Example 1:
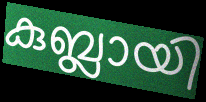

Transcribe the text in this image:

കുബ്ലായി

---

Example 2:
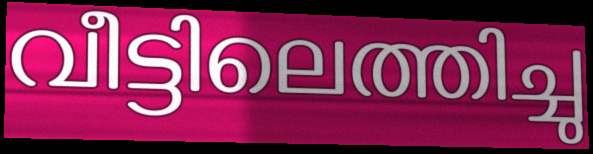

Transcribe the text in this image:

വീട്ടിലെത്തിച്ചു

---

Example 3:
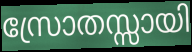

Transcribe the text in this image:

സ്രോതസ്സായി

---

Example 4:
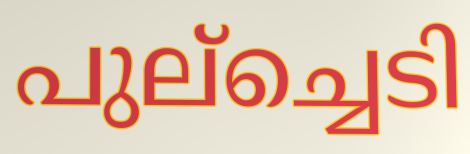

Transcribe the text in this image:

പുല്ച്ചെടി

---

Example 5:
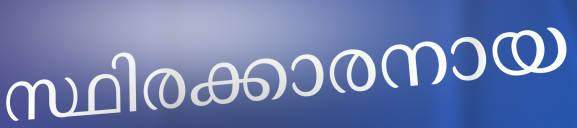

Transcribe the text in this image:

സ്ഥിരക്കാരനായ